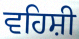
ਵਹਿਸ਼ੀ